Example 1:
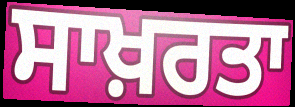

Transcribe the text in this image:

ਸਾਖ਼ਰਤਾ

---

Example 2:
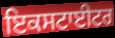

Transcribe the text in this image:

ਇਕਸਟਾਈਟਰ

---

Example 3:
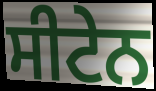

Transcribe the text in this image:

ਸੀਟੇਨ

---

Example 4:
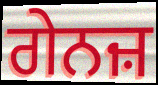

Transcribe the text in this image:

ਗੇਨਜ਼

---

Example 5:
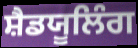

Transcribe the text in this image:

ਸ਼ੈਡਯੂਲਿੰਗ